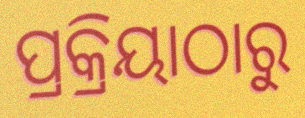
ପ୍ରକ୍ରିୟାଠାରୁ